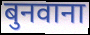
बुनवाना